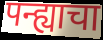
पन्ह्याचा